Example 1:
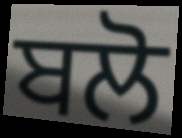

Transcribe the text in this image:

ਬਲੋ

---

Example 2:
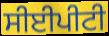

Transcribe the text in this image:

ਸੀਈਪੀਟੀ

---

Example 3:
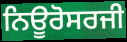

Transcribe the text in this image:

ਨਿਊਰੋਸਰਜੀ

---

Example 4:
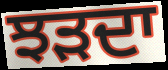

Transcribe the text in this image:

ਝੜਦਾ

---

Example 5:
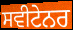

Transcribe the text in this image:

ਸਵੀਟੇਨਰ